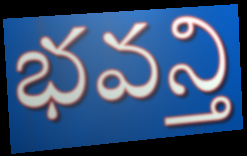
భవన్తి